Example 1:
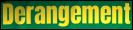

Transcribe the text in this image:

Derangement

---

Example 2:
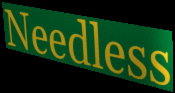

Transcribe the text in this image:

Needless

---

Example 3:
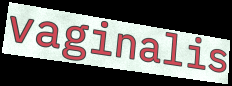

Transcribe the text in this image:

vaginalis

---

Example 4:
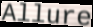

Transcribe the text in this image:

Allure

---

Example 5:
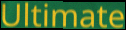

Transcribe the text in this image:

Ultimate